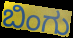
ಬಿಂಗು